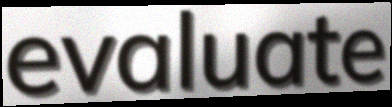
evaluate